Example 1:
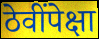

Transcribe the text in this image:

ठेवींपेक्षा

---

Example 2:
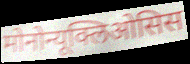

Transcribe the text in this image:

मोनोन्यूक्लिओसिस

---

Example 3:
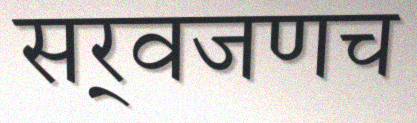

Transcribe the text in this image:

सर्वजणच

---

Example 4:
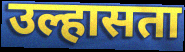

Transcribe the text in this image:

उल्हासता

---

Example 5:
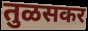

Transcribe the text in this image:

तुळसकर